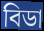
বিডা